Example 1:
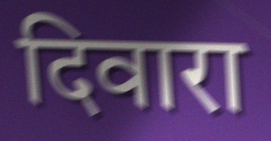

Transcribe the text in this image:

दिवारा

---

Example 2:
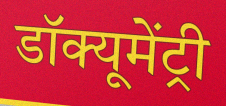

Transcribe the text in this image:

डॉक्‍यूमेंट्री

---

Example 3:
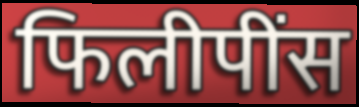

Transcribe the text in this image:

फिलीपींस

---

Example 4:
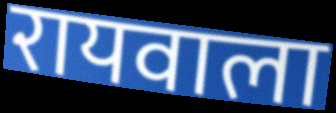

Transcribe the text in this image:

रायवाला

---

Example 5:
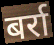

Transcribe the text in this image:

बर्रा